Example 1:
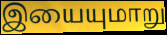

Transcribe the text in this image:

இயையுமாறு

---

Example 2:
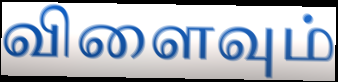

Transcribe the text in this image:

விளைவும்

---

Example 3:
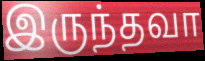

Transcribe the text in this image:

இருந்தவா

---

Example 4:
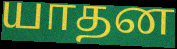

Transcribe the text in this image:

யாதன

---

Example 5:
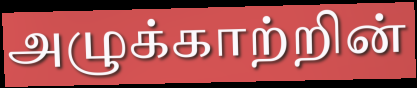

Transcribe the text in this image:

அழுக்காற்றின்